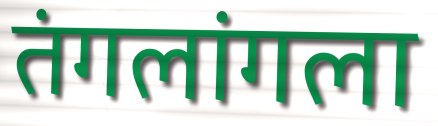
तंगलांगला